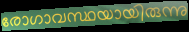
രോഗാവസ്ഥയായിരുന്നു